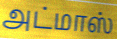
அட்மாஸ்